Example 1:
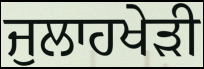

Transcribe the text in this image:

ਜੁਲਾਹਖੇੜੀ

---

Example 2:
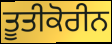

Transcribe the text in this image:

ਤੂਤੀਕੋਰੀਨ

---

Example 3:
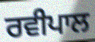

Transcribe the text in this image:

ਰਵੀਪਾਲ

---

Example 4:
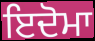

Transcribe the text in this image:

ਇਦੋਮਾ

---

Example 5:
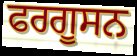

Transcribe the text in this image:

ਫਰਗੂਸਨ